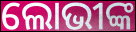
ଲୋଭୀଙ୍କ